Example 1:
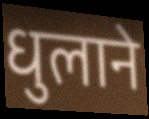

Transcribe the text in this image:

धुलाने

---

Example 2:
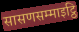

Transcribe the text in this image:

सासणसम्माइट्ठि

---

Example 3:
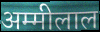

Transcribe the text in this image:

अम्मीलाल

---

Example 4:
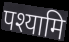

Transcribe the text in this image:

पश्यामि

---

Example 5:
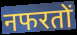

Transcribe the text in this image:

नफरतों